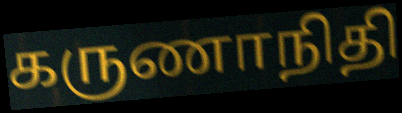
கருணாநிதி